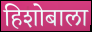
हिशोबाला